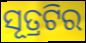
ସୂତ୍ରଟିର